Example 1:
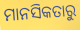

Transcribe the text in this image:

ମାନସିକତାରୁ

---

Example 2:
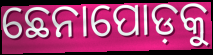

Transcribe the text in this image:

ଛେନାପୋଡ଼କୁ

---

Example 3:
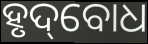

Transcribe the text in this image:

ହୃଦ୍‌ବୋଧ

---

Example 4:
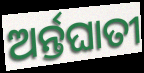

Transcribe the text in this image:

ଅର୍ନ୍ତଘାତୀ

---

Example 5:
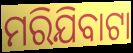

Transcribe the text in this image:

ମରିଯିବାଟା